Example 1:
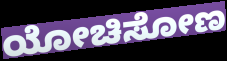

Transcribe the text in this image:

ಯೋಚಿಸೋಣ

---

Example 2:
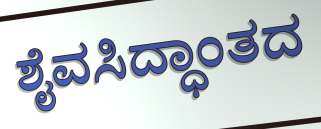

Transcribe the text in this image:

ಶೈವಸಿದ್ಧಾಂತದ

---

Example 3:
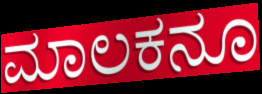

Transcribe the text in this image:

ಮಾಲಕನೂ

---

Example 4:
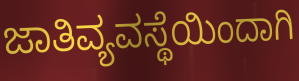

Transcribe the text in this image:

ಜಾತಿವ್ಯವಸ್ಥೆಯಿಂದಾಗಿ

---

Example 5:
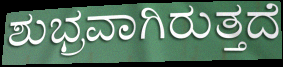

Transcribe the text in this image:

ಶುಭ್ರವಾಗಿರುತ್ತದೆ